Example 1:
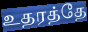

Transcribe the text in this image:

உதரத்தே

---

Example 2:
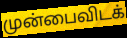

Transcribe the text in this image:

முன்பைவிடக்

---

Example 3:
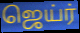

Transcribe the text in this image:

ஜெய்ர்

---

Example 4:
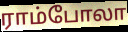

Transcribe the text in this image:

ராம்போலா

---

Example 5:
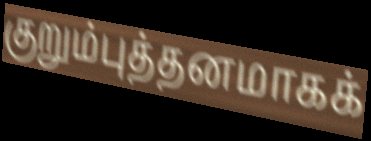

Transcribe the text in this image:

குறும்புத்தனமாகக்